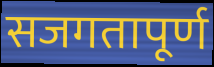
सजगतापूर्ण